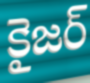
కైజర్